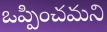
ఒప్పించమని